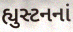
હ્યુસ્ટનનાં